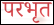
परभृत